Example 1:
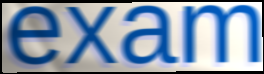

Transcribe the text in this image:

exam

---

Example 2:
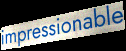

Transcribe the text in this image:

impressionable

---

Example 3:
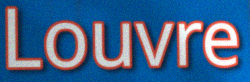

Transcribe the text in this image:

Louvre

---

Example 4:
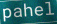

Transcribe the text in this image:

pahel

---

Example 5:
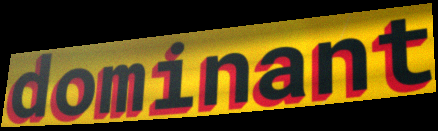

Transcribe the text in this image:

dominant